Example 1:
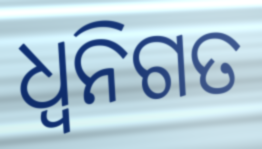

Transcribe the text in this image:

ଧ୍ୱନିଗତ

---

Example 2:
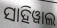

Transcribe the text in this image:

ସାହିୱାଲ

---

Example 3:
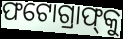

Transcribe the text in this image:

ଫଟୋଗ୍ରାଫ୍‌କୁ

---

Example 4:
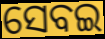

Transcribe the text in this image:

ସେବଇ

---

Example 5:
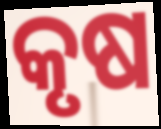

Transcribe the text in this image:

କୃଷ